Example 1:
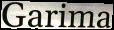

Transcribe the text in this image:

Garima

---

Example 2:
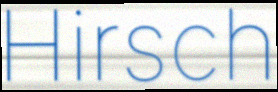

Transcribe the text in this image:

Hirsch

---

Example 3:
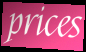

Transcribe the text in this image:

prices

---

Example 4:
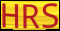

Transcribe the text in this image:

HRS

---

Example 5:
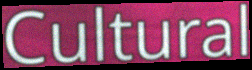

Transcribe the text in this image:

Cultural